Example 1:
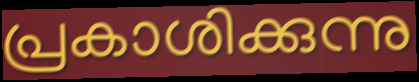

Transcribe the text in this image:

പ്രകാശിക്കുന്നു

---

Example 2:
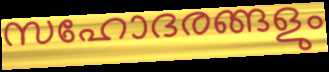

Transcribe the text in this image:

സഹോദരങ്ങളും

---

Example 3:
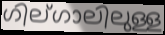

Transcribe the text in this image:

ഗില്ഗാലിലുള്ള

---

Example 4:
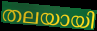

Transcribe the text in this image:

തലയായി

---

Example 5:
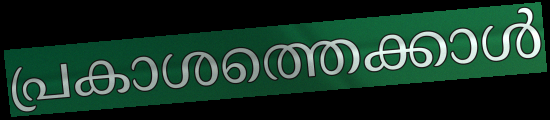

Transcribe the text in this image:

പ്രകാശത്തെക്കാൾ